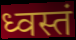
ध्वस्तं